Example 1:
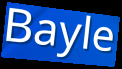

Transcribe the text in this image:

Bayle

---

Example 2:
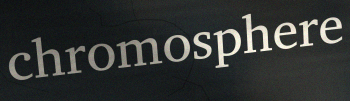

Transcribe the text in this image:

chromosphere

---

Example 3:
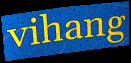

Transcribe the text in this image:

vihang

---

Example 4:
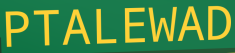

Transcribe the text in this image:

PTALEWAD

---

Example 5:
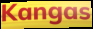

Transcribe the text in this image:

Kangas